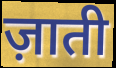
ज़ाती